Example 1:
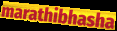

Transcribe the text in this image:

marathibhasha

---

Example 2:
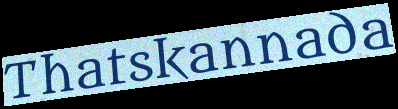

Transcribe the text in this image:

Thatskannada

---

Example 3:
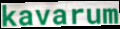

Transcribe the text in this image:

kavarum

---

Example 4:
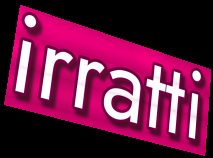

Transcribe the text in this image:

irratti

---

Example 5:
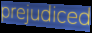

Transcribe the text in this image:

prejudiced